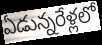
ఏడున్నరేళ్లలో